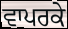
ਵਾਪਰਕੇ